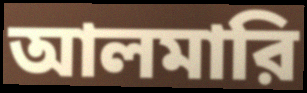
আলমারি